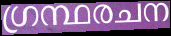
ഗ്രന്ഥരചന